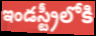
ఇండస్ట్రీలోకి